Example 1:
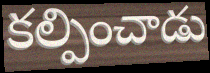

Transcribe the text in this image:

కల్పించాడు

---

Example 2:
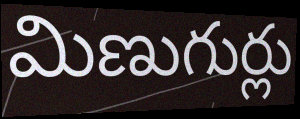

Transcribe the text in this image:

మిణుగుర్లు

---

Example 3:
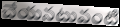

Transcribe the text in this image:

చేయనటువంటి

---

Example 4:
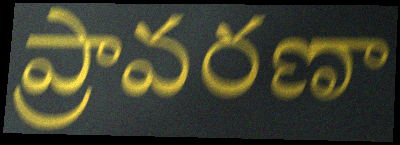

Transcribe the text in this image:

ప్రావరణా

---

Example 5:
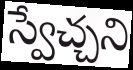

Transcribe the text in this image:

స్వేచ్చని